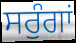
ਸਰੁੰਗਾਂ